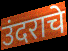
उंदराचे